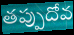
తప్పుదోవ